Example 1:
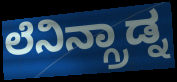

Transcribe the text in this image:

ಲೆನಿನ್ಗ್ರಾಡ್ನ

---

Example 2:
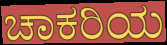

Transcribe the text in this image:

ಚಾಕರಿಯ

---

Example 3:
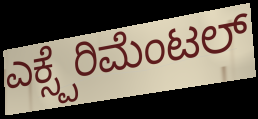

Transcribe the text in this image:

ಎಕ್ಸ್ಪೆರಿಮೆಂಟಲ್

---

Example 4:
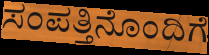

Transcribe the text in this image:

ಸಂಪತ್ತಿನೊಂದಿಗೆ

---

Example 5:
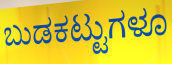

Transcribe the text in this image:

ಬುಡಕಟ್ಟುಗಳೂ